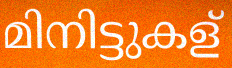
മിനിട്ടുകള്